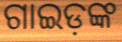
ଗାଇଡ଼ଙ୍କ